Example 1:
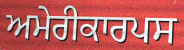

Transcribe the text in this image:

ਅਮੇਰੀਕਾਰਪਸ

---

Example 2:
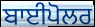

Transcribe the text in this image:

ਬਾਈਪੋਲਰ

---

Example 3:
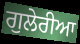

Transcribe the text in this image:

ਗੁਲੇਰੀਆ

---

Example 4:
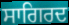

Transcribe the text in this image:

ਸਾਗਿਰਦ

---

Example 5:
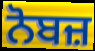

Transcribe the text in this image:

ਨੋਬਜ਼